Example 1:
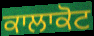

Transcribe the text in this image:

ਕਾਲਾਕੋਟ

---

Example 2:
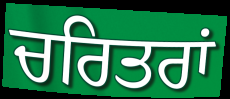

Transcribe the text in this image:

ਚਰਿਤਰਾਂ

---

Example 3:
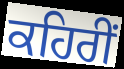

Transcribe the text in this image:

ਕਹਿਰੀਂ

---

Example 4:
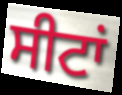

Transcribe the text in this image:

ਸੀਟਾਂ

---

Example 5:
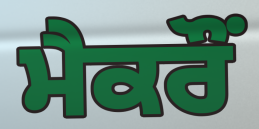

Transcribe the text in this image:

ਮੈਕਰੌਂ